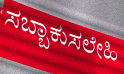
ಸಬ್ಬಾಕುಸಲೇಹಿ